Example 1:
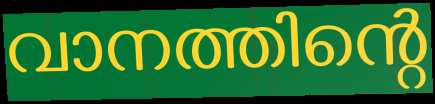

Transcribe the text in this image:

വാനത്തിന്റെ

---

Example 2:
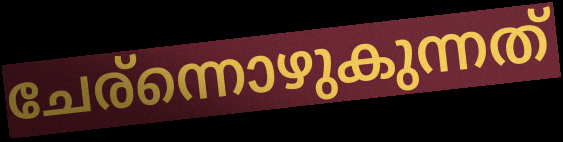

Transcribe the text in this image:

ചേര്ന്നൊഴുകുന്നത്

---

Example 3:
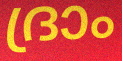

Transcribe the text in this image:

ദ്രാം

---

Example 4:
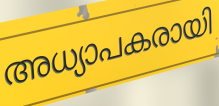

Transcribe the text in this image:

അധ്യാപകരായി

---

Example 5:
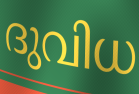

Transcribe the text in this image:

ദുവിധ